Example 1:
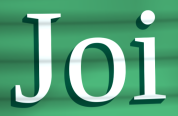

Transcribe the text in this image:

Joi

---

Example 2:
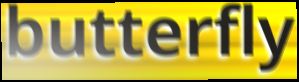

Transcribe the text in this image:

butterfly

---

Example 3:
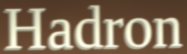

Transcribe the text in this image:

Hadron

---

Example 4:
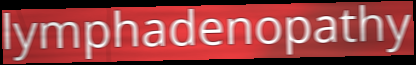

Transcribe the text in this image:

lymphadenopathy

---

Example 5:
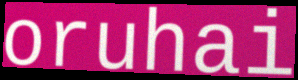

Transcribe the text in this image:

oruhai